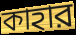
কাহার